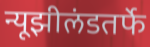
न्यूझीलंडतर्फे